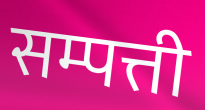
सम्पत्ती